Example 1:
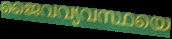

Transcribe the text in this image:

ജൈവവ്യവസ്ഥയെ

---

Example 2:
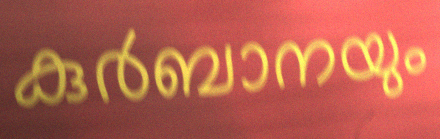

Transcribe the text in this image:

കുർബാനയും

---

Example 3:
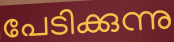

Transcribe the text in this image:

പേടിക്കുന്നു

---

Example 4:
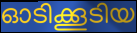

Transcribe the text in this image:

ഓടിക്കൂടിയ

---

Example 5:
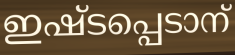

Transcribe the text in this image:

ഇഷ്ടപ്പെടാന്